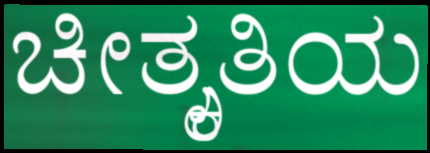
ಚೀತ್ಕೃತಿಯ